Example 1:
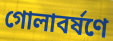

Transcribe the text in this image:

গোলাবর্ষণে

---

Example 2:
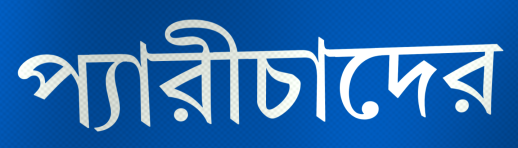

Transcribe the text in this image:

প্যারীচাদের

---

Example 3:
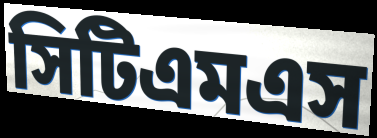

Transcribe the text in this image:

সিটিএমএস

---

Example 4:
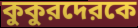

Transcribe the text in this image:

কুকুরদেরকে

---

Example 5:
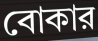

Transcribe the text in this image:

বোকার